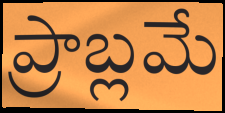
ప్రాబ్లమే